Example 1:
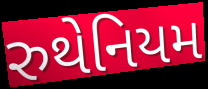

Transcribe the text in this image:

રુથેનિયમ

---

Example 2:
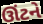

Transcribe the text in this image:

ઊંટને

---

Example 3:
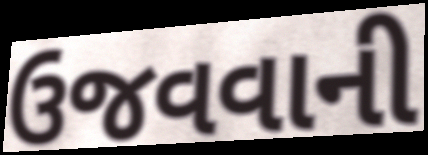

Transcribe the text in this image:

ઉજવવાની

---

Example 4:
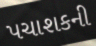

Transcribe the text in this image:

પચાશકની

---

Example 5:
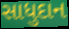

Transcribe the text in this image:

સાધુદાન